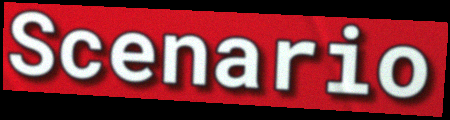
Scenario